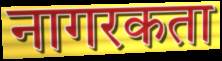
नागरकता